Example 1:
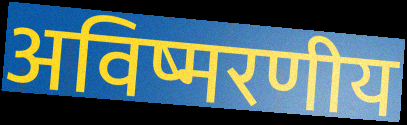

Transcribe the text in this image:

अविष्मरणीय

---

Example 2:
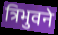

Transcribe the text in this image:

त्रिभुवने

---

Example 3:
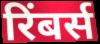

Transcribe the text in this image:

रिंबर्स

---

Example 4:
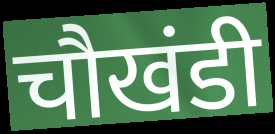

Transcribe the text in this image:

चौखंडी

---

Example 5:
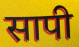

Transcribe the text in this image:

सापी